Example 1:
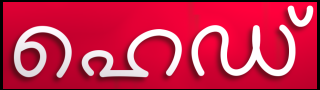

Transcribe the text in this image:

ഹെഡ്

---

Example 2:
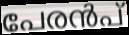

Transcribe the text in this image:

പേരൻപ്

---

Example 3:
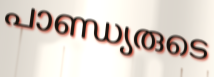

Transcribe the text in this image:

പാണ്ഡ്യരുടെ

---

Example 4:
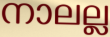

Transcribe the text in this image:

നാലല്ല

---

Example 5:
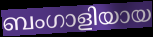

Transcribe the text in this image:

ബംഗാളിയായ